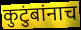
कुटुंबांनाच